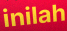
inilah